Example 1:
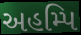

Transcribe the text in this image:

અહમ્પિ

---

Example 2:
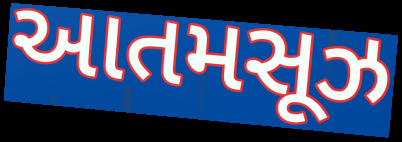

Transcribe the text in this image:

આતમસૂઝ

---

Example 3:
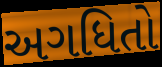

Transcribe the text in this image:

અગધિતો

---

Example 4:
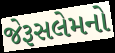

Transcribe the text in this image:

જેરૂસલેમનો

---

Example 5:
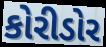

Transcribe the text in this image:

કોરીડોર